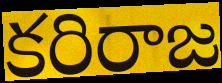
కరిరాజ